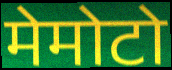
मेमोटो